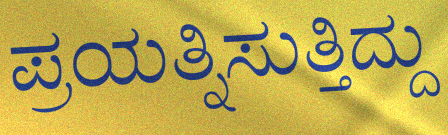
ಪ್ರಯತ್ನಿಸುತ್ತಿದ್ದು